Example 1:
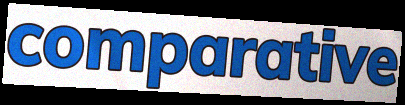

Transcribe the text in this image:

comparative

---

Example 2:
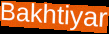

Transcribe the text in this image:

Bakhtiyar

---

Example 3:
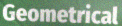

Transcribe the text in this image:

Geometrical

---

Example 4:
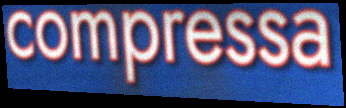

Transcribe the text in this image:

compressa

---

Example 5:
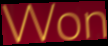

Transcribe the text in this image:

Won